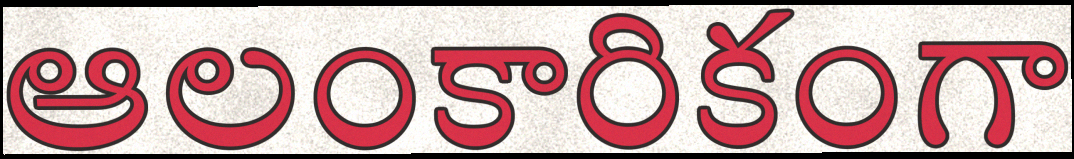
ఆలంకారికంగా